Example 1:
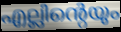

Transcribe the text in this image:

എല്ലിന്റെയും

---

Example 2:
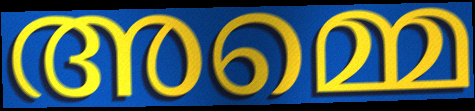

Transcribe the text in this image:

അമ്മെ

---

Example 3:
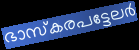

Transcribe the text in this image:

ഭാസ്കരപട്ടേലർ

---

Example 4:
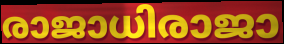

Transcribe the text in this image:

രാജാധിരാജാ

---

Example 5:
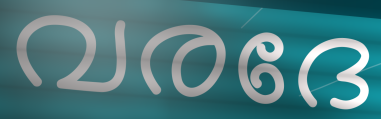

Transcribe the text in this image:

വരദേ